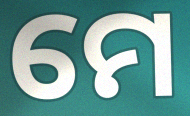
ମେ